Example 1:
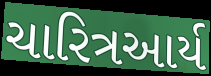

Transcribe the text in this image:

ચારિત્રઆર્ય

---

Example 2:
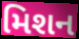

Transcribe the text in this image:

મિશન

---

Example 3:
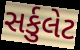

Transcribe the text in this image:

સર્કુલેટ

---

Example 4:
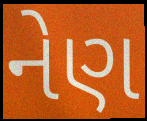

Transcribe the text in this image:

નેણ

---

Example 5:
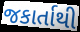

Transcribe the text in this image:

જકાર્તાથી